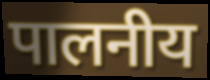
पालनीय